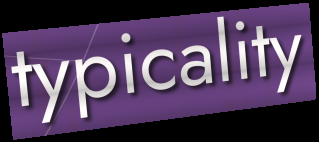
typicality